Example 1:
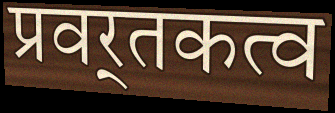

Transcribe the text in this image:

प्रवर्तकत्व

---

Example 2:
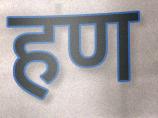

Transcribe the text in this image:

हण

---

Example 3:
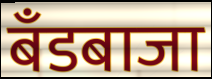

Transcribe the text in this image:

बँडबाजा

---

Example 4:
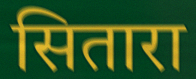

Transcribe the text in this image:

सितारा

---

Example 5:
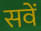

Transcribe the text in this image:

सवें